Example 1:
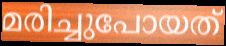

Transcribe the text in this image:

മരിച്ചുപോയത്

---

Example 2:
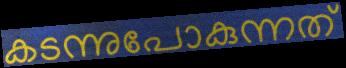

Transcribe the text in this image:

കടന്നുപോകുന്നത്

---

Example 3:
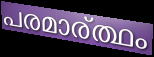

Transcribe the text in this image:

പരമാര്ത്ഥം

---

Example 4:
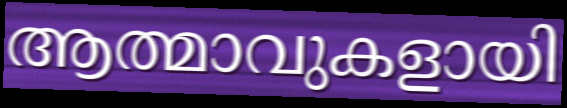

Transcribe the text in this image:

ആത്മാവുകളായി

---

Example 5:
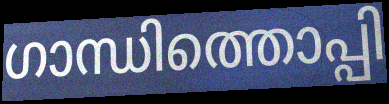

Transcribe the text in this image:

ഗാന്ധിത്തൊപ്പി